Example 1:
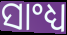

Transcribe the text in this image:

ସାଂଧ୍ୟ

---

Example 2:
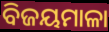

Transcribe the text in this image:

ବିଜୟମାଳା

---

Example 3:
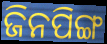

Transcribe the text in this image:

ଜିନପିଙ୍ଗ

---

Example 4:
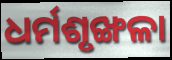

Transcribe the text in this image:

ଧର୍ମଶୃଙ୍ଖଳା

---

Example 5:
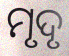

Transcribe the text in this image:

ମୃଦୃ